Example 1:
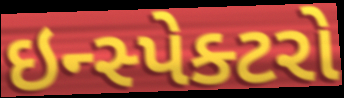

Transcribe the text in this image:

ઇન્સ્પેક્ટરો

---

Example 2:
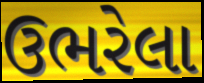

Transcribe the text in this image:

ઉભરેલા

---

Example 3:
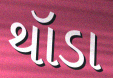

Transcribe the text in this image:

થૉડા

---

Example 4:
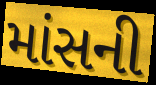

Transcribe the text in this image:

માંસની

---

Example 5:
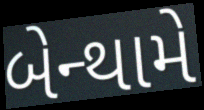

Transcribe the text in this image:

બેન્થામે